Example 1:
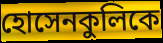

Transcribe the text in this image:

হোসেনকুলিকে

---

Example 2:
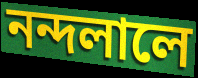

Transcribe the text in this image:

নন্দলালে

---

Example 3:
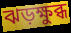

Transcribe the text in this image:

ঝড়ক্ষুব্ধ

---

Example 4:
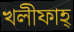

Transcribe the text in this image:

খলীফাহ্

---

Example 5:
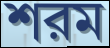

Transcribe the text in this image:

শরম